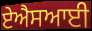
ਏਐਸਆਈ